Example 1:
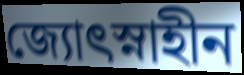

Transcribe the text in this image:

জ্যোৎস্নাহীন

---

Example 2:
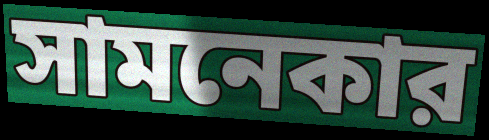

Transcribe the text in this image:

সামনেকার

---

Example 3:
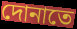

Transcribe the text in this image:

দোনাতে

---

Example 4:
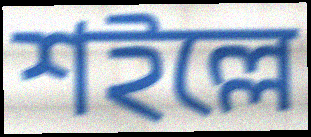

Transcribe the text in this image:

শইল্লে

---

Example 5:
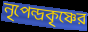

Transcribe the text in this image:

নৃপেন্দ্রকৃষ্ণের